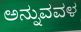
ಅನ್ನುವವಳ